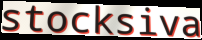
stocksiva